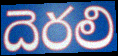
దెరలి